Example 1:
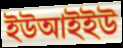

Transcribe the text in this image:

ইউআইইউ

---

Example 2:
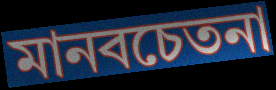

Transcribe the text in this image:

মানবচেতনা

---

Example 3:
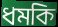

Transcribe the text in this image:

ধমকি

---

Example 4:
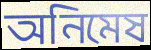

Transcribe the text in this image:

অনিমেষ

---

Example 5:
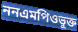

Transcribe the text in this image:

ননএমপিওভুক্ত